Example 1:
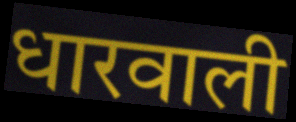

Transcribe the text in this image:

धारवाली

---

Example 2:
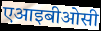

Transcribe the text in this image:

एआइबीओसी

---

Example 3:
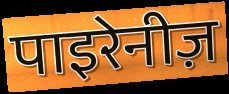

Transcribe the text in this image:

पाइरेनीज़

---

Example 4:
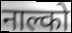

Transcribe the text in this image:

नाल्को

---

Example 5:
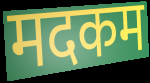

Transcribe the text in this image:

मदकम